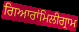
ਗਿਆਰਾਂਮਿਲੀਗ੍ਰਾਮ